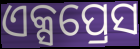
ଏକ୍ସପ୍ରେସ